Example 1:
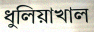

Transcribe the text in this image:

ধুলিয়াখাল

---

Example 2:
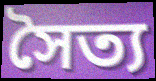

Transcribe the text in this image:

সৈত্য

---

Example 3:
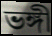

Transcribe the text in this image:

ভঙ্গী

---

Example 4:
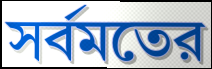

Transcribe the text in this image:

সর্বমতের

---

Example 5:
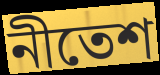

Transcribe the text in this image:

নীতেশ